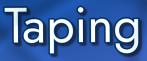
Taping